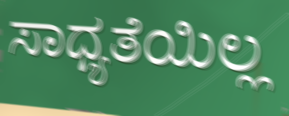
ಸಾಧ್ಯತೆಯಿಲ್ಲ